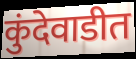
कुंदेवाडीत